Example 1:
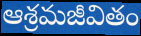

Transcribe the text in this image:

ఆశ్రమజీవితం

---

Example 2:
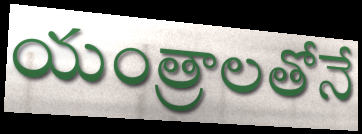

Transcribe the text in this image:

యంత్రాలతోనే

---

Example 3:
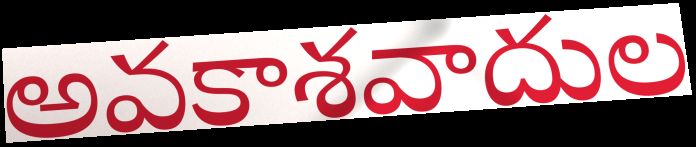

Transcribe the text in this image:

అవకాశవాదుల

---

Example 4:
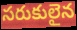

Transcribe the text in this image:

సరుకులైన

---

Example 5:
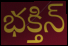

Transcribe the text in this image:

భక్తిన్